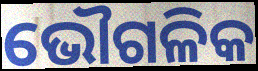
ଭୌଗଳିକ